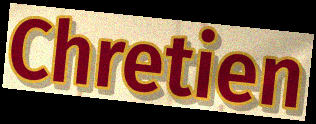
Chretien